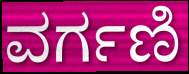
ವರ್ಗಣಿ